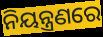
ନିୟନ୍ତ୍ରଣରେ